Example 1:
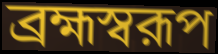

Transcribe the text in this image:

ব্রহ্মস্বরূপ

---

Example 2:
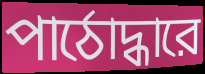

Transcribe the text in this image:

পাঠোদ্ধারে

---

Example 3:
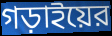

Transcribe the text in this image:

গড়াইয়ের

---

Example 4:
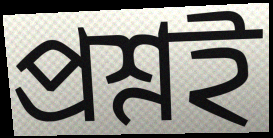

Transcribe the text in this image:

প্রশ্নই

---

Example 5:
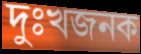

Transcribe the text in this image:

দুঃখজনক